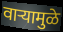
वाऱ्यामुळे